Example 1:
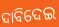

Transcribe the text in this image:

ଦାବିଦେଇ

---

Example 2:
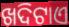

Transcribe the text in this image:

ଖଦିଟାଏ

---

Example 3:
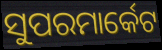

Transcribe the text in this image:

ସୁପରମାର୍କେଟ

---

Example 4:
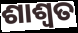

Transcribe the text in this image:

ଶାଶ୍ଵତ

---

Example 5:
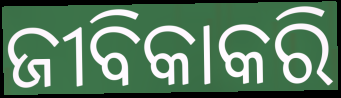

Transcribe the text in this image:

ଜୀବିକାକରି